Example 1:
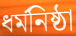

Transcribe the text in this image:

ধর্মনিষ্ঠা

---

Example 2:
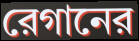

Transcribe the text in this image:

রেগানের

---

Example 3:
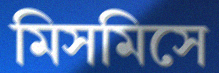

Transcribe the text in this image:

মিসমিসে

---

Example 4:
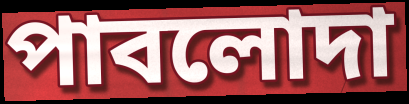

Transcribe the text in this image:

পাবলোদা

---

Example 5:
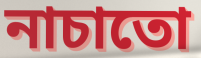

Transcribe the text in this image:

নাচাতো